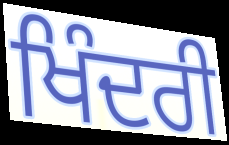
ਖਿੰਦਰੀ